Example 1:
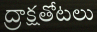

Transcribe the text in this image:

ద్రాక్షతోటలు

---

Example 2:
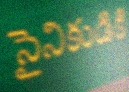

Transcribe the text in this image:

సైనికుడికి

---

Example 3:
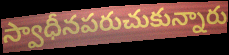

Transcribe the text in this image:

స్వాధీనపరుచుకున్నారు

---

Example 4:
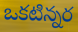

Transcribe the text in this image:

ఒకటిన్నర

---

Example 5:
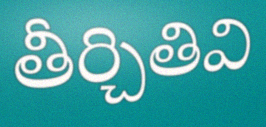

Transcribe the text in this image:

తీర్చితివి